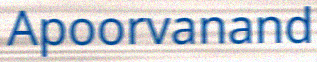
Apoorvanand